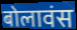
बोलावंस